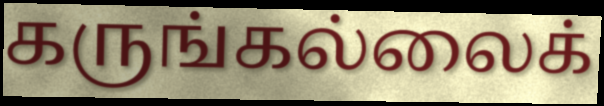
கருங்கல்லைக்